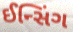
ઈન્સિંગ